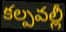
కల్పవల్లీ